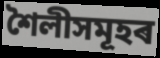
শৈলীসমূহৰ